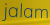
jalam